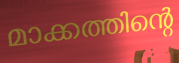
മാക്കത്തിന്റെ